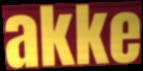
akke